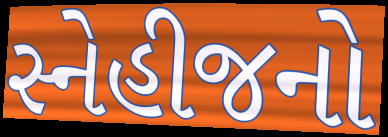
સ્નેહીજનો